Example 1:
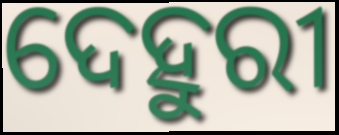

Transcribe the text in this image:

ଦେହୁରୀ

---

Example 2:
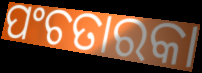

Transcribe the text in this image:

ପଂଚତାରକା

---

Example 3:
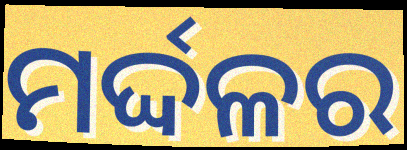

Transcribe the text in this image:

ମର୍ଦ୍ଦଳର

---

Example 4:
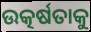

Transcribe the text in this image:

ଉତ୍କର୍ଷତାକୁ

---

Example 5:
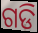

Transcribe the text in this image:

ଗଡି